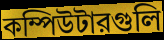
কম্পিউটারগুলি